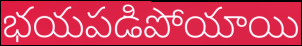
భయపడిపోయాయి